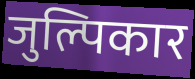
जुल्पिकार